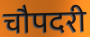
चौपदरी